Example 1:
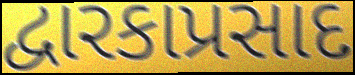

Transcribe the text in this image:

દ્વારકાપ્રસાદ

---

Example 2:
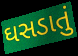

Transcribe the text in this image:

ઘસડાતું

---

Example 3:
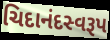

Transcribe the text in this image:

ચિદાનંદસ્વરૂપ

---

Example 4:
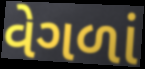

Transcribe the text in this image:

વેગળાં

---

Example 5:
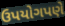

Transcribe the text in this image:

ઉપયોગપણે